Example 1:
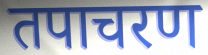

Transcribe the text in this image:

तपाचरण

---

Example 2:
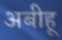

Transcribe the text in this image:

अबीहू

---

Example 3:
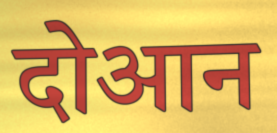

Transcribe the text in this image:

दोआन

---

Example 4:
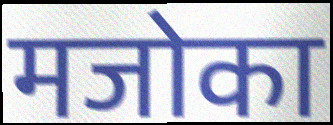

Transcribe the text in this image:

मजोका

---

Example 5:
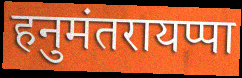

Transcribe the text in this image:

हनुमंतरायप्पा